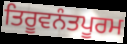
ਤਿਰੂਵਨੰਤਪੂਰਮ